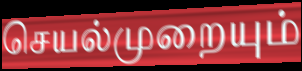
செயல்முறையும்